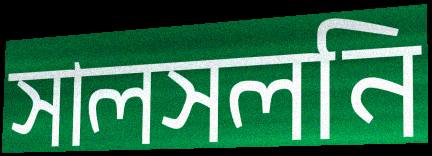
সালসলনি